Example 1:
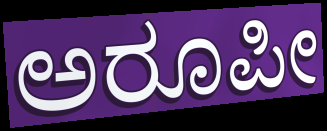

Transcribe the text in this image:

ಅರೂಪೀ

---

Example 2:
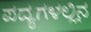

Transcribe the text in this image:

ಪದ್ಯಗಳಲ್ಲಿನ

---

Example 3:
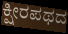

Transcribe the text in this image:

ಕ್ಷೀರಪಥದ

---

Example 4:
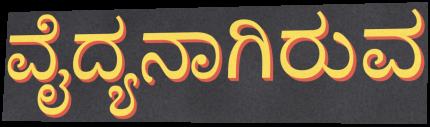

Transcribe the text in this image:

ವೈದ್ಯನಾಗಿರುವ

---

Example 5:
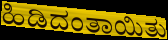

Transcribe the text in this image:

ಹಿಡಿದಂತಾಯಿತು